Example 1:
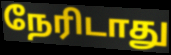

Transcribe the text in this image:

நேரிடாது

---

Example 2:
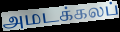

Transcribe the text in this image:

அமடக்கலப்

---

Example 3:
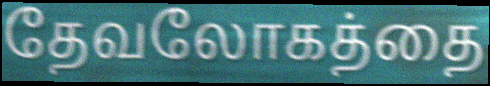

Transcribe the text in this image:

தேவலோகத்தை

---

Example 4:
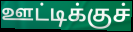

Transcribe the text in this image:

ஊட்டிக்குச்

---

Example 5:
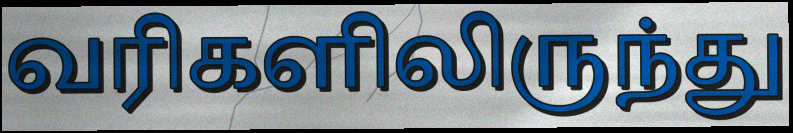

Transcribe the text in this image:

வரிகளிலிருந்து